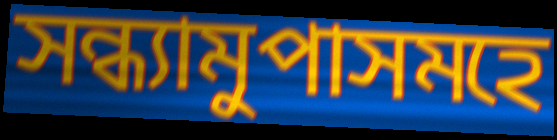
সন্ধ্যামুপাসমহে